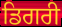
ਡਿਗਰੀ